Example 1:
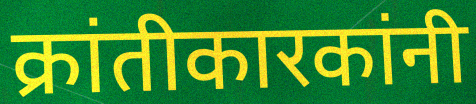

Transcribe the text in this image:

क्रांतीकारकांनी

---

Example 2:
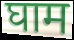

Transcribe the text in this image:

घाम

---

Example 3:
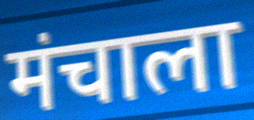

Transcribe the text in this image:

मंचाला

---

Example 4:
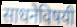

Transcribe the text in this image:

साधनेविषयी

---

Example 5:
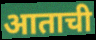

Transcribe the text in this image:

आताची